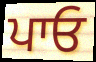
ਪਾਓ